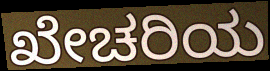
ಖೇಚರಿಯ